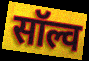
सॉल्व